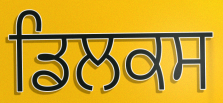
ਡਿਲਕਸ